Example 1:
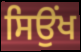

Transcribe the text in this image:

ਸਿਉਂਖ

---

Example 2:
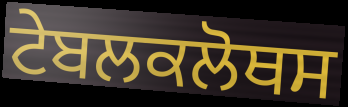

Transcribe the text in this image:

ਟੇਬਲਕਲੋਥਸ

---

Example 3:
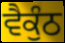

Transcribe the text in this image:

ਵੈਕੁੰਠ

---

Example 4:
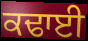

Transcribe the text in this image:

ਕਢਾਈ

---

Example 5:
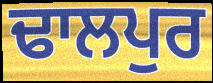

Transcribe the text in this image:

ਢਾਲਪੁਰ